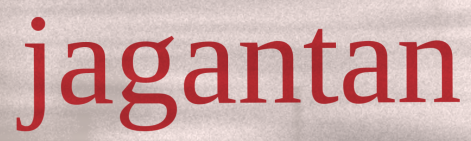
jagantan